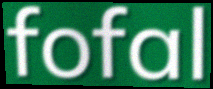
fofal